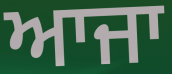
ਆਜਾ